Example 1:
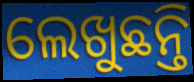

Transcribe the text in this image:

ଲେଖୁଛନ୍ତି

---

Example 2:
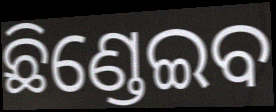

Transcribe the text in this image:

ଛିଣ୍ଡେଇବ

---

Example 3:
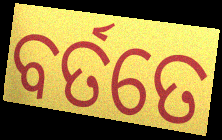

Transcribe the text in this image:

ବର୍ତତେ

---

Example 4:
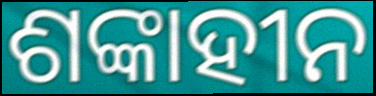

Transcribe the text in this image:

ଶଙ୍କାହୀନ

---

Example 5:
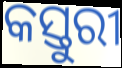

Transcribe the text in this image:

କସ୍ତୁରୀ